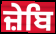
ਜ਼ੇਬਿ